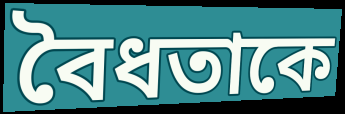
বৈধতাকে